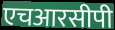
एचआरसीपी